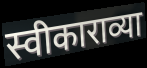
स्वीकाराव्या